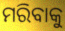
ମରିବାକୁ